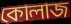
কোলাজ